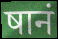
षानं